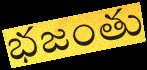
భజంతు